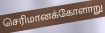
செரிமானக்கோளாறு